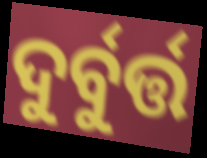
ଦୁର୍ବୁର୍ତ୍ତ